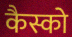
कैस्को